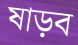
ষাড়ব